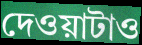
দেওয়াটাও